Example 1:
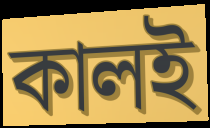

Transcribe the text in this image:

কালই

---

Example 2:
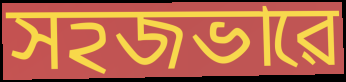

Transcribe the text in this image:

সহজভাৱে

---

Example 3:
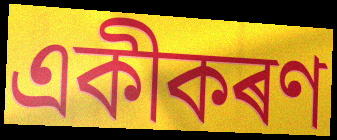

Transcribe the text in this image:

একীকৰণ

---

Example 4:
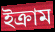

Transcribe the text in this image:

ইক্ৰাম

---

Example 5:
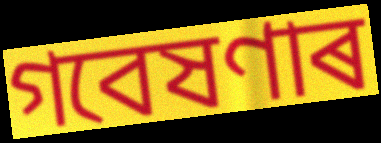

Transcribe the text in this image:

গবেষণাৰ